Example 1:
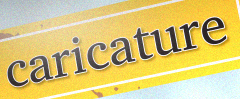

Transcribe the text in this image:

caricature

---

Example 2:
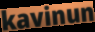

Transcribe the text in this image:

kavinun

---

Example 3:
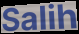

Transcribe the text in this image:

Salih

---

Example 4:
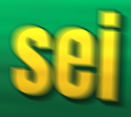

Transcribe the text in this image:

sei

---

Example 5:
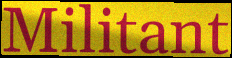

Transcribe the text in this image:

Militant